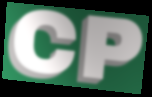
CP